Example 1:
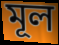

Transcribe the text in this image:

মূল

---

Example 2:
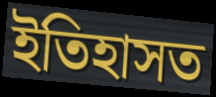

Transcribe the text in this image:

ইতিহাসত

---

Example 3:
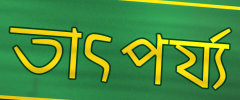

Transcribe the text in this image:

তাৎপৰ্য্য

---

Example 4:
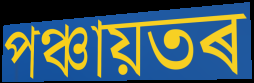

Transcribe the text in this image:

পঞ্চায়তৰ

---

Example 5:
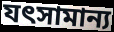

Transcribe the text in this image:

যৎসামান্য